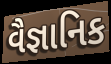
વૈજ્ઞાનિક